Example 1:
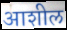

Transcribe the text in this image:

आशील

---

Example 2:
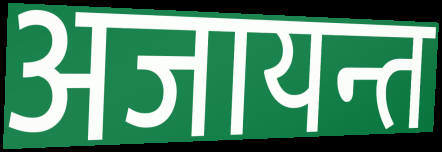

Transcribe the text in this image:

अजायन्त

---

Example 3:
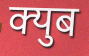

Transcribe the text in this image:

क्युब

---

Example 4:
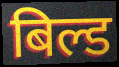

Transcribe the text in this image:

बिल्ड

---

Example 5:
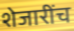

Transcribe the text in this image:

शेजारींच